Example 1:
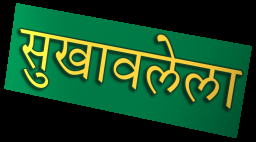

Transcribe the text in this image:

सुखावलेला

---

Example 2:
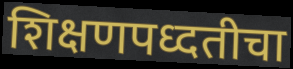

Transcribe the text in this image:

शिक्षणपध्दतीचा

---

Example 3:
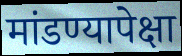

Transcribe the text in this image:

मांडण्यापेक्षा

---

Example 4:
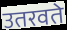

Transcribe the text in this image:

उतरवते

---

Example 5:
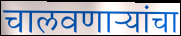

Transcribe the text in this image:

चालवणाऱ्यांचा